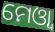
ମେଓ୍ୱା